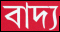
বাদ্য